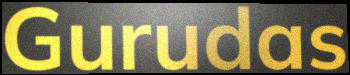
Gurudas